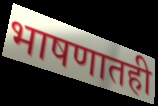
भाषणातही